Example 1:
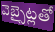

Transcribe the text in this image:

వెబ్సైట్లతో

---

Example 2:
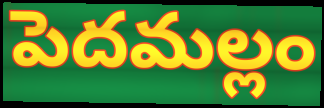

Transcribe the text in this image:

పెదమల్లం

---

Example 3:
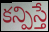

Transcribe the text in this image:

కన్పిస్తే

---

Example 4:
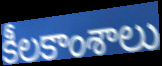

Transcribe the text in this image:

కీలకాంశాలు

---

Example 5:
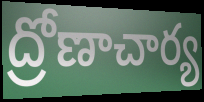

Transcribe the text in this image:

ద్రోణాచార్య